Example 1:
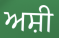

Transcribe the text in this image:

ਅਸ਼ੀ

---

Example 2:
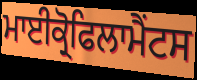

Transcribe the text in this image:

ਮਾਈਕ੍ਰੋਫਿਲਾਮੈਂਟਸ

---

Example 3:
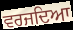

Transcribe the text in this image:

ਵਰਜਦਿਆ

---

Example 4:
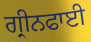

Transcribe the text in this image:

ਗ੍ਰੀਨਫਾਈ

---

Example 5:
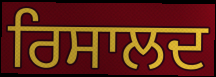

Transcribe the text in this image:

ਰਿਸਾਲਦ